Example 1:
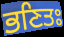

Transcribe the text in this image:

ਭਣਿਤਃ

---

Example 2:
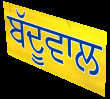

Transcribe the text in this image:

ਬੱਦੂਵਾਲ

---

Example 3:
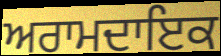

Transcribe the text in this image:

ਅਰਾਮਦਾਇਕ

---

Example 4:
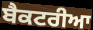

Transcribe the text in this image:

ਬੈਕਟਰੀਆ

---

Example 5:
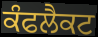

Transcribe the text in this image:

ਕੰਫਲੈਕਟ